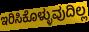
ಇರಿಸಿಕೊಳ್ಳುವುದಿಲ್ಲ